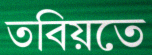
তবিয়তে